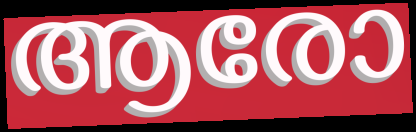
ആരോ